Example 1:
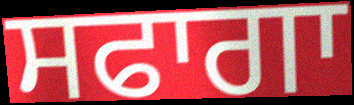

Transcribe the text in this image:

ਸਫਾਗਾ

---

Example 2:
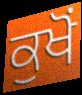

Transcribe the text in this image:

ਕੁਖੋਂ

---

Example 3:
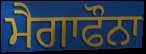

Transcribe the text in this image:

ਮੈਗਾਫੌਨਾ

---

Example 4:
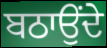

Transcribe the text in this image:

ਬਠਾਉਂਦੇ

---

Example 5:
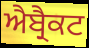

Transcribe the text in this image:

ਐਬ੍ਰੈਕਟ